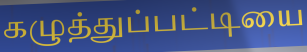
கழுத்துப்பட்டியை